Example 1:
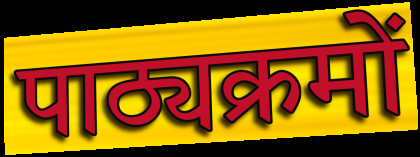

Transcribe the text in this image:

पाठ्यक्रमों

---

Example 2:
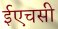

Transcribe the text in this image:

ईएचसी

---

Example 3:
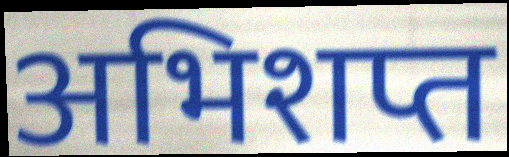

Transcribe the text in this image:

अभिशप्त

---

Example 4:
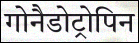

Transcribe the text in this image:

गोनैडोट्रोपिन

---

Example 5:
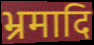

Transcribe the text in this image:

भ्रमादि